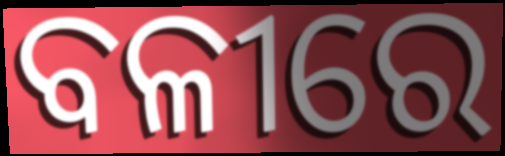
ବଳୀରେ